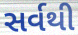
સર્વથી